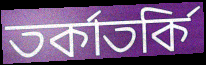
তৰ্কাতৰ্কি